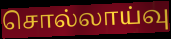
சொல்லாய்வு